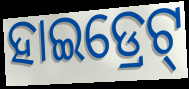
ହାଇଡ୍ରେଟ୍